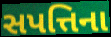
સપત્તિના